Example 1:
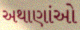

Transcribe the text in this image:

અથાણાંઓ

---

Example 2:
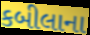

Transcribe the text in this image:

કબીલાના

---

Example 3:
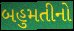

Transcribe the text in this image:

બહુમતીનો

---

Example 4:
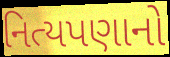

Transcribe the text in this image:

નિત્યપણાનો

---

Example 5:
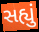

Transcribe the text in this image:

સહ્યું